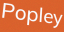
Popley